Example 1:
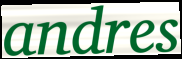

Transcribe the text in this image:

andres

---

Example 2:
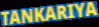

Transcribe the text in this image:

TANKARIYA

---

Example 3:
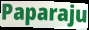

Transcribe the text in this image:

Paparaju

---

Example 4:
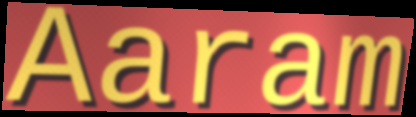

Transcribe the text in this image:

Aaram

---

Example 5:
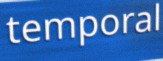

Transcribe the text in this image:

temporal